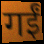
गईं